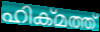
ഹിക്മത്ത്